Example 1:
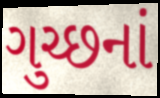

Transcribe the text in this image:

ગુચ્છનાં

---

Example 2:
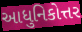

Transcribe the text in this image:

આધુનિકોત્તર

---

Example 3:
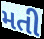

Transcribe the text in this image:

મતી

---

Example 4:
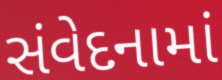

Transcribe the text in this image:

સંવેદનામાં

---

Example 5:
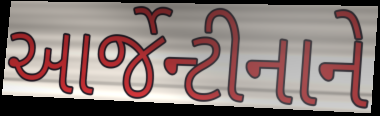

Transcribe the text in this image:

આર્જેન્ટીનાને